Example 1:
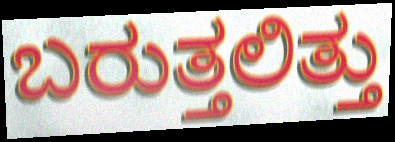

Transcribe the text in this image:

ಬರುತ್ತಲಿತ್ತು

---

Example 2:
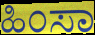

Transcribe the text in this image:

ಹಿಂಸಾ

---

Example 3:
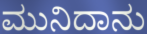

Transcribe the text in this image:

ಮುನಿದಾನು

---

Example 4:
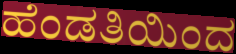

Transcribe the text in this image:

ಹೆಂಡತಿಯಿಂದ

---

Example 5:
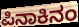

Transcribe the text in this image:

ಪಿನಾಕಿನಂ